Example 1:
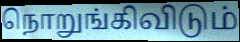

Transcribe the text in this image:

நொறுங்கிவிடும்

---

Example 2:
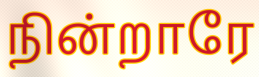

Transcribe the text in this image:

நின்றாரே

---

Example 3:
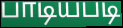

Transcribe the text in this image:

பாடியபடி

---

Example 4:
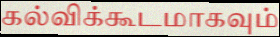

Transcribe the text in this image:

கல்விக்கூடமாகவும்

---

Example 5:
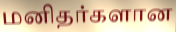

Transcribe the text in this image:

மனிதர்களான